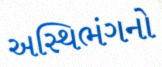
અસ્થિભંગનો